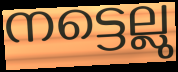
നട്ടെല്ലു